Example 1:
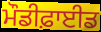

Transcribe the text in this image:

ਮੌਡੀਫ਼ਾਈਡ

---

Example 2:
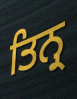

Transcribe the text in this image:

ਤਿਨ੍ਰ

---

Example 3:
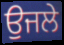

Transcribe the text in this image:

ਉਜਲੇ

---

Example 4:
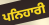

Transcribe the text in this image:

ਪਨਿਹਾਰੀ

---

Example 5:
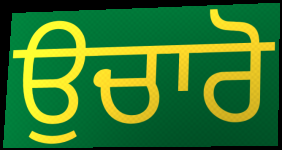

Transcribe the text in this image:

ਉਚਾਰੋ